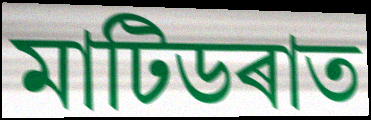
মাটিডৰাত